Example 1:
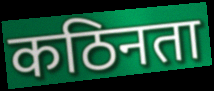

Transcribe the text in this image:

कठिनता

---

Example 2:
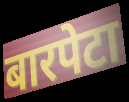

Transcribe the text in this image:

बारपेटा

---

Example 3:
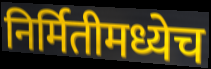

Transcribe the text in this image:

निर्मितीमध्येच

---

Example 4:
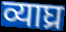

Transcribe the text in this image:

व्याघ्र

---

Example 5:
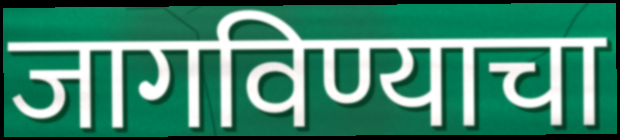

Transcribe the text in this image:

जागविण्याचा